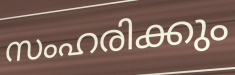
സംഹരിക്കും